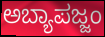
ಅಬ್ಯಾಪಜ್ಜಂ